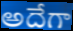
అదేగా